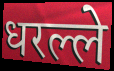
धरल्ले